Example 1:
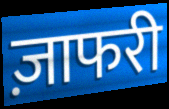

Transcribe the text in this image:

ज़ाफरी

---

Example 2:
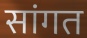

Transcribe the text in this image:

सांगत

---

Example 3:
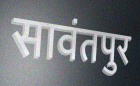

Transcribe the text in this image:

सावंतपुर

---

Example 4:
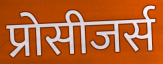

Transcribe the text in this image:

प्रोसीजर्स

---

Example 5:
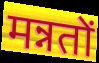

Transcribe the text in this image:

मन्नतों